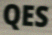
QES